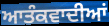
ਆਤੰਕਵਾਦੀਆਂ